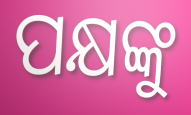
ପକ୍ଷଙ୍କୁ